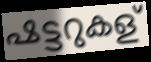
ഷട്ടറുകള്